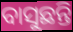
ବାସୁଛନ୍ତି